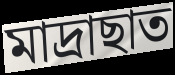
মাদ্ৰাছাত